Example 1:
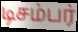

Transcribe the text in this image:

டிசம்பர்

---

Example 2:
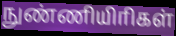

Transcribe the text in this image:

நுண்ணியிரிகள்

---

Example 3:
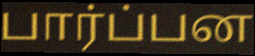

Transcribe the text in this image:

பார்ப்பன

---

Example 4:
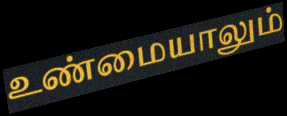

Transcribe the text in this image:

உண்மையாலும்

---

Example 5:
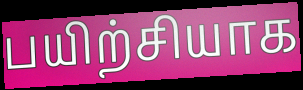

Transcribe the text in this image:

பயிற்சியாக